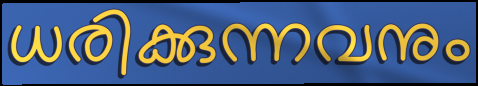
ധരിക്കുന്നവനും